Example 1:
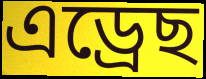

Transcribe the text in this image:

এড্ৰেছ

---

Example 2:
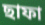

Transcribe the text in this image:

ছাফা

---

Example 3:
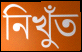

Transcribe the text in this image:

নিখুঁত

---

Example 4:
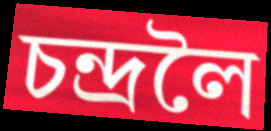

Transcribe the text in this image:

চন্দ্ৰলৈ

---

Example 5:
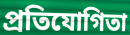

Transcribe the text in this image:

প্ৰতিযোগিতা